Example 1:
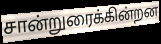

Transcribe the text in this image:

சான்றுரைக்கின்றன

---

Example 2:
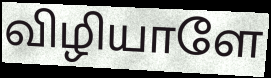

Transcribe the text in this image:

விழியாளே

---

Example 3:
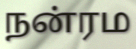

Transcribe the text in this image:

நன்ரம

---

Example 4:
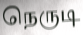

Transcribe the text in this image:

நெருடி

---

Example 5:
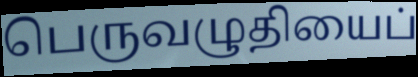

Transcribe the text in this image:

பெருவழுதியைப்